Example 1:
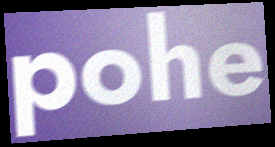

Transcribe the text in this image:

pohe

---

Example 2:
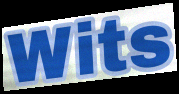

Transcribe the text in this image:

Wits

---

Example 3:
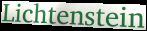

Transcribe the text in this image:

Lichtenstein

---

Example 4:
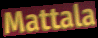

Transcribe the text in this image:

Mattala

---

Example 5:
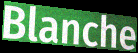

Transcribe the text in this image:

Blanche